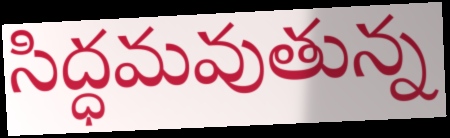
సిద్ధమవుతున్న